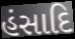
હંસાદિ